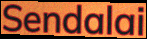
Sendalai